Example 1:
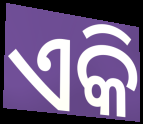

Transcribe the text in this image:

ଏକି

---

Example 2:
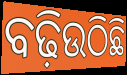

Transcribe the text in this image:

ବଢ଼ିଉଠିଛି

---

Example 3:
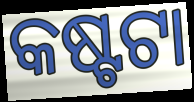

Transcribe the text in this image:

କଷ୍ଟଟା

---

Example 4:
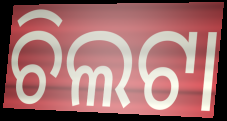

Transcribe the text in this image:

ଚିଲଟା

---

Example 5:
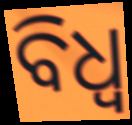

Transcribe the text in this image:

ବିଧ୍ଵ